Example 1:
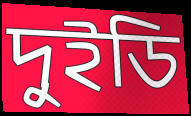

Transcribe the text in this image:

দুইডি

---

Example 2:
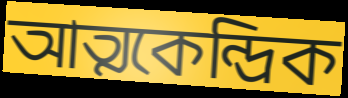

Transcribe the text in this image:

আত্মকেন্দ্রিক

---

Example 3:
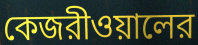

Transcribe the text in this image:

কেজরীওয়ালের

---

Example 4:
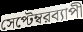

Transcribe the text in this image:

সেপ্টেম্বরব্যাপী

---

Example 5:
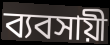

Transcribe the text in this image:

ব্যবসায়ী